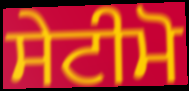
ਸੇਟੀਮੋ